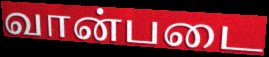
வான்படை